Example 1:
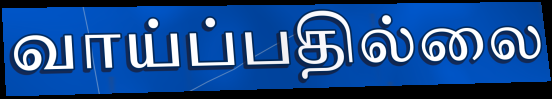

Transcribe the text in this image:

வாய்ப்பதில்லை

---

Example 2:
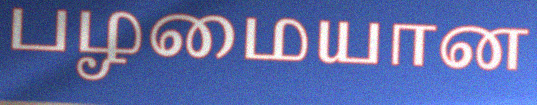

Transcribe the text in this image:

பழமையான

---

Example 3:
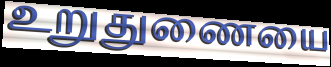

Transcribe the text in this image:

உறுதுணையை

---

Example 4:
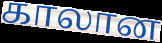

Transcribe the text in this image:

காலான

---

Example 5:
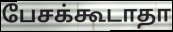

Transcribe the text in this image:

பேசக்கூடாதா